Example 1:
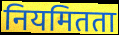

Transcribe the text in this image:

नियमितता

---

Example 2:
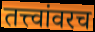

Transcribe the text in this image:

तत्त्वांवरच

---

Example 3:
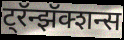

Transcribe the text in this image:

ट्रॅन्झॅक्शन्स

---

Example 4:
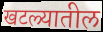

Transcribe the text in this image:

खटल्यातील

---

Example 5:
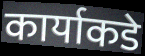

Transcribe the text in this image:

कार्याकडे